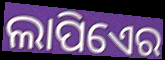
ଲାପିଏେର